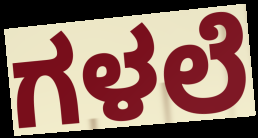
ಗಳಲೆ